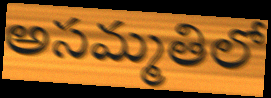
అసమ్మతిలో